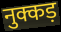
नुक्कड़